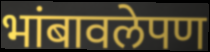
भांबावलेपण